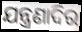
ଯନ୍ତ୍ରଣାଦିର